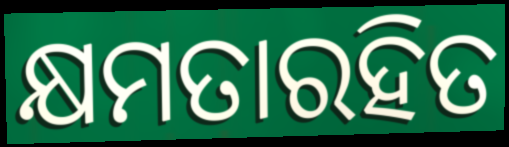
କ୍ଷମତାରହିତ